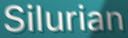
Silurian